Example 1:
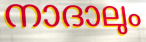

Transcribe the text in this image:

നാദാലും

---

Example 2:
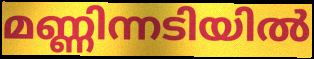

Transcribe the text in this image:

മണ്ണിന്നടിയിൽ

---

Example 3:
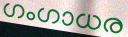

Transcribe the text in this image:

ഗംഗാധര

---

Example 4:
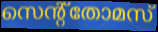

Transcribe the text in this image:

സെന്റ്തോമസ്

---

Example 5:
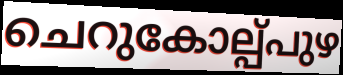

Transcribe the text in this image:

ചെറുകോല്പ്പുഴ